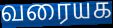
வரையக